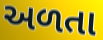
અળતા